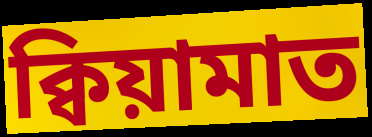
ক্বিয়ামাত